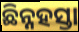
ଛିନ୍ନହସ୍ତା